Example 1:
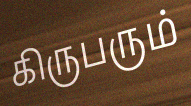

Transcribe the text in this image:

கிருபரும்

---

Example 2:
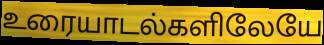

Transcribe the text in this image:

உரையாடல்களிலேயே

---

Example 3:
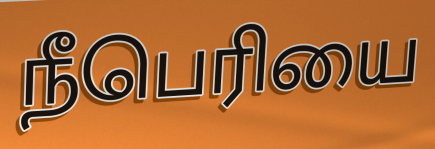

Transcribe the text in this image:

நீபெரியை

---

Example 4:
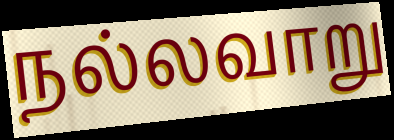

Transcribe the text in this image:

நல்லவாறு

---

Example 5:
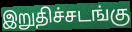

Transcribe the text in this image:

இறுதிச்சடங்கு